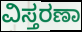
ವಿಸ್ತರಣಾ